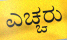
ಎಚ್ಚರು